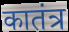
कातंत्र